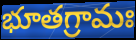
భూతగ్రామః